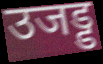
उजड्ड